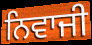
ਨਿਵਾਜੀ